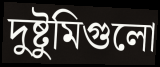
দুষ্টুমিগুলো